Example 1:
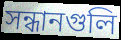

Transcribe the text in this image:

সন্ধানগুলি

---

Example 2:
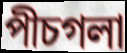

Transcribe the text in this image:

পীচগলা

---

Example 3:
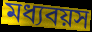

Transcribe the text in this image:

মধ্যবয়স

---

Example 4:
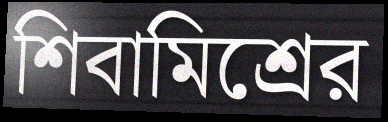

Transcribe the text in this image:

শিবামিশ্রের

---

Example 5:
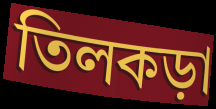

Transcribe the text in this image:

তিলকড়া